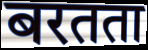
बरतता